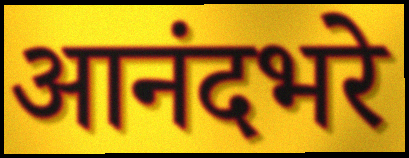
आनंदभरे